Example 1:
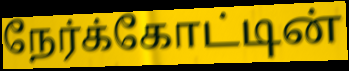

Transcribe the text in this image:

நேர்க்கோட்டின்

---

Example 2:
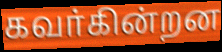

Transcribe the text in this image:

கவர்கின்றன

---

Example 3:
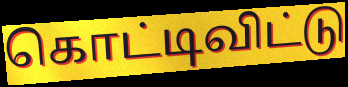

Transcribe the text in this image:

கொட்டிவிட்டு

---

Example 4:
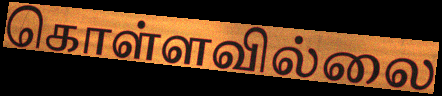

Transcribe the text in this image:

கொள்ளவில்லை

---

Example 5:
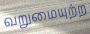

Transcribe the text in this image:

வறுமையுற்ற